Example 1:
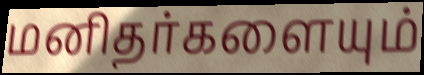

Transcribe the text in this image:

மனிதர்களையும்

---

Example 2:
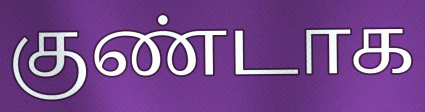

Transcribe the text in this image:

குண்டாக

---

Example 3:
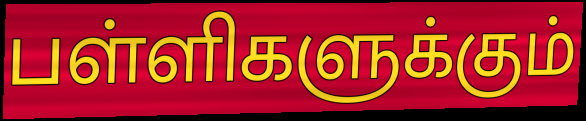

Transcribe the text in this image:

பள்ளிகளுக்கும்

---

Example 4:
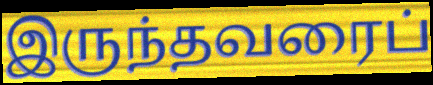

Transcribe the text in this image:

இருந்தவரைப்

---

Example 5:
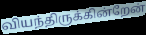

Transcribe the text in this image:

வியந்திருக்கின்றேன்